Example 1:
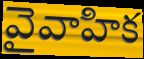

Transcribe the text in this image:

వైవాహిక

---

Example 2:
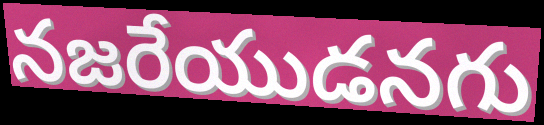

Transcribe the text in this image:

నజరేయుడనగు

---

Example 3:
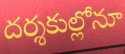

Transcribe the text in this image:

దర్శకుల్లోనూ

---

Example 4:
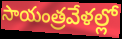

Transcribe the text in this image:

సాయంత్రవేళల్లో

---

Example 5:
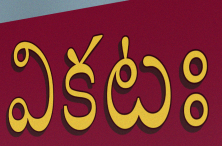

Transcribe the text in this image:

వికటః